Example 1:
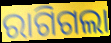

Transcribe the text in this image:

ରାଗିଗଲା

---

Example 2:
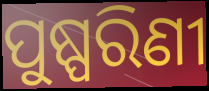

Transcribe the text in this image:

ପୁଷ୍ପରିଣୀ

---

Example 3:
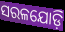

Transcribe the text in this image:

ସରଳଯୋଡ଼ି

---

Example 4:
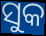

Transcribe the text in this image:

ସୁକ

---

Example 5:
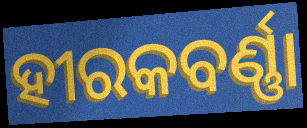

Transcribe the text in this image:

ହୀରକବର୍ଣ୍ଣା